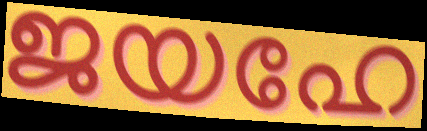
ജയഹേ